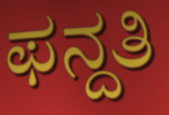
ಫನ್ದತಿ